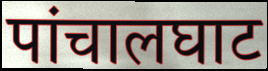
पांचालघाट